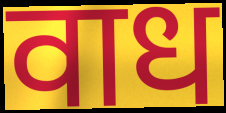
वाध